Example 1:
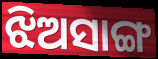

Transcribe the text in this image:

ଝିଅସାଙ୍ଗ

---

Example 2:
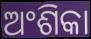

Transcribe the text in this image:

ଅଂଶିକା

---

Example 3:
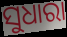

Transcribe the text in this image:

ସୁଧାରା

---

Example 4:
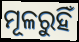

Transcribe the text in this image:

ମୂଳରୁହିଁ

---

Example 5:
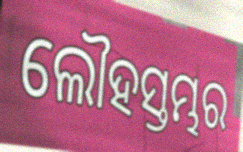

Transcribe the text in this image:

ଲୌହସ୍ତମ୍ଭର